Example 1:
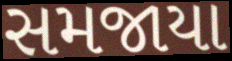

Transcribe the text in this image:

સમજાયા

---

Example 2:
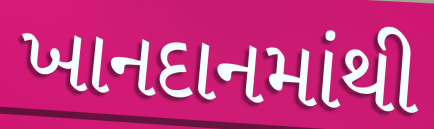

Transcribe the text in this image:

ખાનદાનમાંથી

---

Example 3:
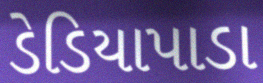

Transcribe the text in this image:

ડેડિયાપાડા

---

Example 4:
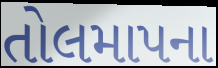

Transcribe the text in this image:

તોલમાપના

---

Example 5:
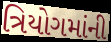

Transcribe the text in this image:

ત્રિયોગમાંની